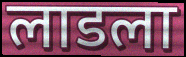
लाडला